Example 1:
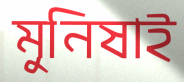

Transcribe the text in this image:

মুনিষাই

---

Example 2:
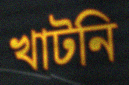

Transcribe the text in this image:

খাটনি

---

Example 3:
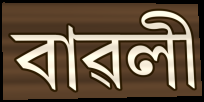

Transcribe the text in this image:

বাৱলী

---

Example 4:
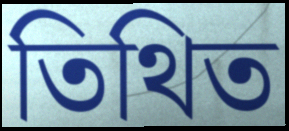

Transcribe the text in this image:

তিথিত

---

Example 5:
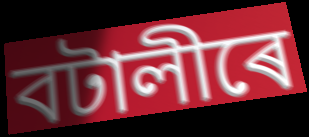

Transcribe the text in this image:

বটালীৰে